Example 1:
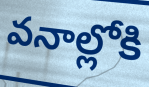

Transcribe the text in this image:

వనాల్లోకి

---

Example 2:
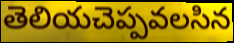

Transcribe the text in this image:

తెలియచెప్పవలసిన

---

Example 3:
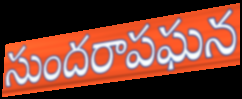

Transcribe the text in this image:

సుందరాపఘన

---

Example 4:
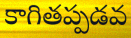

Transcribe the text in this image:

కాగితప్పడవ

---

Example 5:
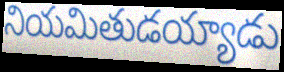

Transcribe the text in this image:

నియమితుడయ్యాడు